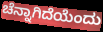
ಚೆನ್ನಾಗಿದೆಯೆಂದು